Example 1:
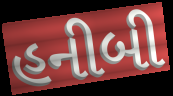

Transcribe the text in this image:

હનીબી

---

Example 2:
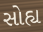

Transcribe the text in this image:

સોહ્ય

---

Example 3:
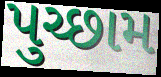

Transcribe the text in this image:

પુચ્છામ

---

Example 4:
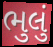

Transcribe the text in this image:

ભુલું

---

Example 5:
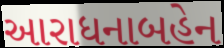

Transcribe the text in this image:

આરાધનાબહેન